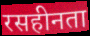
रसहीनता